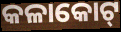
କଳାକୋଟ୍